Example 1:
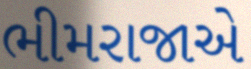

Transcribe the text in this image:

ભીમરાજાએ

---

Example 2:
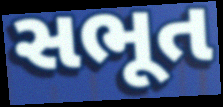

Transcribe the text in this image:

સભૂત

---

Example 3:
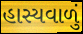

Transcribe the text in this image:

હાસ્યવાળું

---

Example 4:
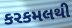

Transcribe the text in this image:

કરકમલથી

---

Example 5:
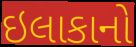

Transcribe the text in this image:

ઇલાકાનો